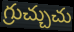
గ్రుచ్చుచు